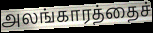
அலங்காரத்தைச்